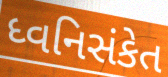
ધ્વનિસંકેત